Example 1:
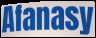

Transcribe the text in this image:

Afanasy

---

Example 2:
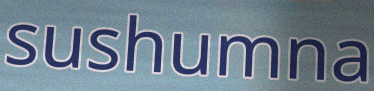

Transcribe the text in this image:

sushumna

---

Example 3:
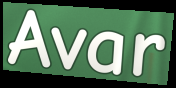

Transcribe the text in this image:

Avar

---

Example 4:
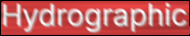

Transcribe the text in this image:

Hydrographic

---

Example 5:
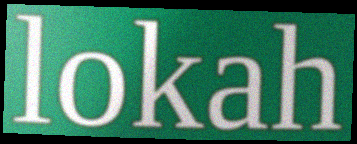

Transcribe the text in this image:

lokah